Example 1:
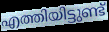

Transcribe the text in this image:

എത്തിയിട്ടുണ്ട്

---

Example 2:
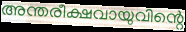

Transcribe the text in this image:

അന്തരീക്ഷവായുവിന്റെ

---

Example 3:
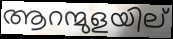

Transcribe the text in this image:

ആറന്മുളയില്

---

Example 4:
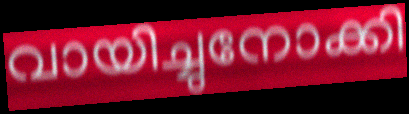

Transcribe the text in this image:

വായിച്ചുനോക്കി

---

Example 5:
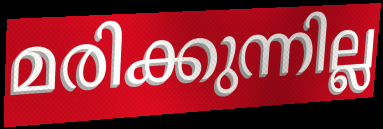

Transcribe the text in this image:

മരിക്കുന്നില്ല